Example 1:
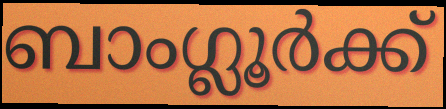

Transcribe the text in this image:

ബാംഗ്ലൂർക്ക്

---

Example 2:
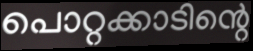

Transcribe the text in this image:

പൊറ്റക്കാടിന്റെ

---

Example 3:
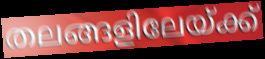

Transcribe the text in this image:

തലങ്ങളിലേയ്ക്ക്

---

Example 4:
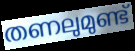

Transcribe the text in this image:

തണലുമുണ്ട്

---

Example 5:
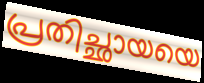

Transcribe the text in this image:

പ്രതിച്ഛായയെ